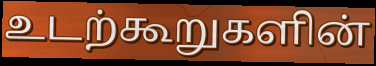
உடற்கூறுகளின்